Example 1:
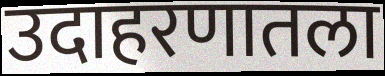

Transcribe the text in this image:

उदाहरणातला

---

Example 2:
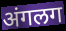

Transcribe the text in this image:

अंगलग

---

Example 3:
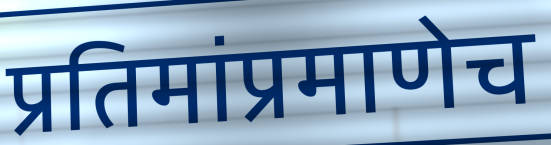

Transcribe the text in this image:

प्रतिमांप्रमाणेच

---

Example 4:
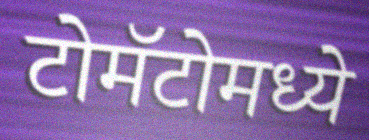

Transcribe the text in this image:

टोमॅटोमध्ये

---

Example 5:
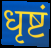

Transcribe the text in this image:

धृष्टं